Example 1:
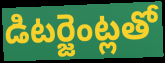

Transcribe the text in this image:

డిటర్జెంట్లతో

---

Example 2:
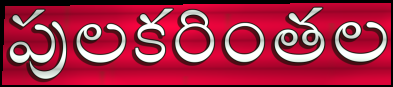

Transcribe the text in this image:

పులకరింతల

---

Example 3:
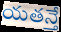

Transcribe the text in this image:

యతన్తే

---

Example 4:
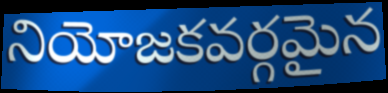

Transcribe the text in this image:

నియోజకవర్గమైన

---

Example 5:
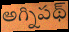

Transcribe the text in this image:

అగ్నిపథ్